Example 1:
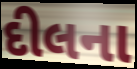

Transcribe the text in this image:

દીલના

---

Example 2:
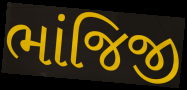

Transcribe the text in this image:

ભાંજિજી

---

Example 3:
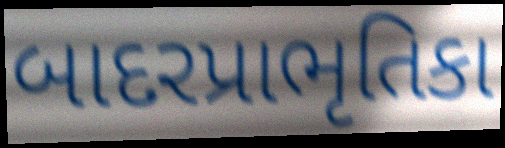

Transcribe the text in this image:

બાદરપ્રાભૃતિકા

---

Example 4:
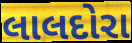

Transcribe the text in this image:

લાલદોરા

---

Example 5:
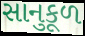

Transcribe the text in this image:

સાનુકૂળ